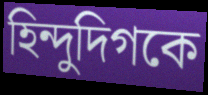
হিন্দুদিগকে